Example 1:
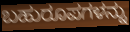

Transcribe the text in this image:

ಬಹುರೂಪಗಳನ್ನು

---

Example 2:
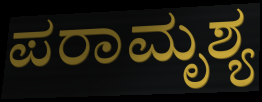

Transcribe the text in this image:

ಪರಾಮೃಶ್ಯ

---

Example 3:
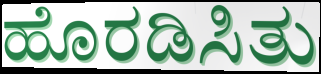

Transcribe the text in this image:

ಹೊರಡಿಸಿತು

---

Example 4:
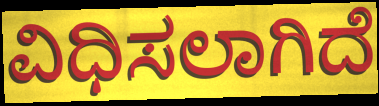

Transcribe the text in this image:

ವಿಧಿಸಲಾಗಿದೆ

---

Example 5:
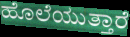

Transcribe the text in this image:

ಹೊಲೆಯುತ್ತಾರೆ